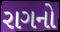
રાગનો